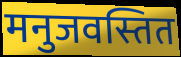
मनुजवस्तित